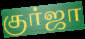
குர்ஜா